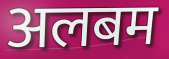
अलबम